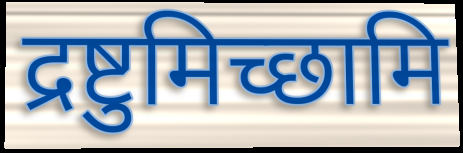
द्रष्टुमिच्छामि